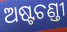
ଅଷ୍ଟଚଣ୍ଡୀ